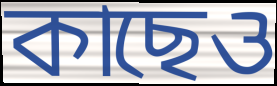
কাছেও